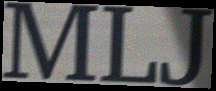
MLJ